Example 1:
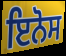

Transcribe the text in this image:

ਇਨੋਸ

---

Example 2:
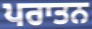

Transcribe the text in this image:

ਪਰਾਤਨ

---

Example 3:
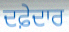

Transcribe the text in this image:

ਦਫ਼ੇਦਾਰ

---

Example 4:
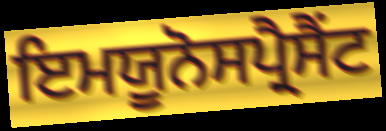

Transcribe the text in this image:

ਇਮਯੂਨੋਸਪ੍ਰੈਸੈਂਟ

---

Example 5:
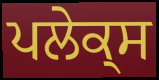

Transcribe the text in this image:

ਪਲੇਕ੍ਸ